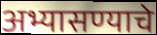
अभ्यासण्याचे